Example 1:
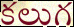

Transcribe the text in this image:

కలుగ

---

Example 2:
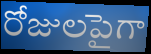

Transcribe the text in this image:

రోజులపైగా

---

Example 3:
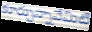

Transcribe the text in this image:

కూర్చున్నావేమిటి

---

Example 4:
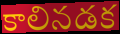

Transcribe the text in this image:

కాలినడక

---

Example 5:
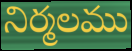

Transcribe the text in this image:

నిర్మలము